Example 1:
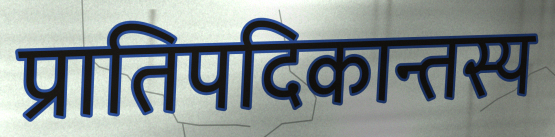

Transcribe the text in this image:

प्रातिपदिकान्तस्य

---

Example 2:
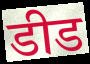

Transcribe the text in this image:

डीड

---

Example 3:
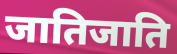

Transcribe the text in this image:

जातिजाति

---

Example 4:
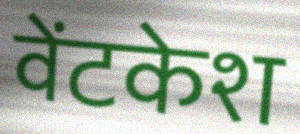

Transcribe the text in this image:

वेंटकेश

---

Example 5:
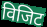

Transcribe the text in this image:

विजिट